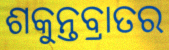
ଶକୁନ୍ତବ୍ରାତର